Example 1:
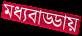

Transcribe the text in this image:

মধ্যবাড্ডায়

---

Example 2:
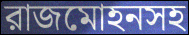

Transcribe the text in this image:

রাজমোহনসহ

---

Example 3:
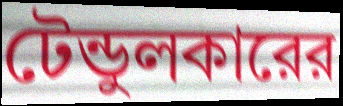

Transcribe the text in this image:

টেন্ডুলকারের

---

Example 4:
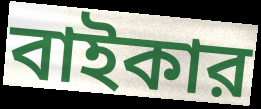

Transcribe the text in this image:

বাইকার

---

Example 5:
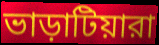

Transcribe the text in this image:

ভাড়াটিয়ারা